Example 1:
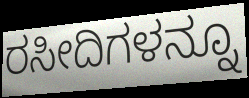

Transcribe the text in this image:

ರಸೀದಿಗಳನ್ನೂ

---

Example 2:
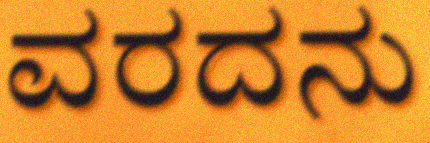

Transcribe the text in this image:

ವರದನು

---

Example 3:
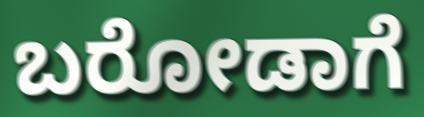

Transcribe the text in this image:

ಬರೋಡಾಗೆ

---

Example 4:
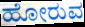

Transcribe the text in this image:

ಹೋರುವ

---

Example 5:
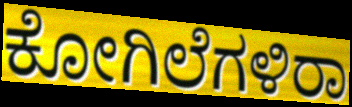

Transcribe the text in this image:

ಕೋಗಿಲೆಗಳಿರಾ